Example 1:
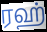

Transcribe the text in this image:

ரஹ்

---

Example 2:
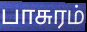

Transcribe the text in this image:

பாசுரம்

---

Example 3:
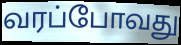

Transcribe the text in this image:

வரப்போவது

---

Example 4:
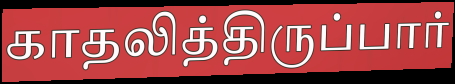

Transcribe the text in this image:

காதலித்திருப்பார்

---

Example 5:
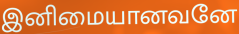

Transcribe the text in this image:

இனிமையானவனே